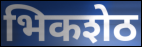
भिकशेठ